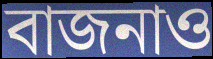
বাজনাও